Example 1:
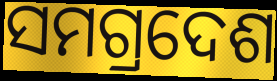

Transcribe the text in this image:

ସମଗ୍ରଦେଶ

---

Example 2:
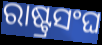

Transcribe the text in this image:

ରାଷ୍ଟ୍ରସଂଘ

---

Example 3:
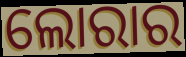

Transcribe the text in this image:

ଲୋରାର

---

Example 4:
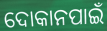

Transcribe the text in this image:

ଦୋକାନପାଇଁ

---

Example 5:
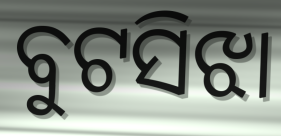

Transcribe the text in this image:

ବୁଟସିଝା